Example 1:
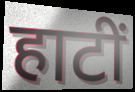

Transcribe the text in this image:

हाटीं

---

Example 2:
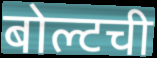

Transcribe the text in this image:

बोल्टची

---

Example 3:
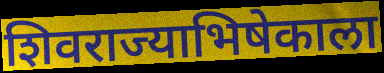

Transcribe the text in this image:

शिवराज्याभिषेकाला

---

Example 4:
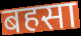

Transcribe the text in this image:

बहसा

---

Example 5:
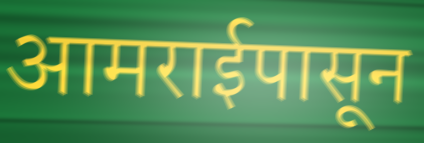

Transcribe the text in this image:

आमराईपासून